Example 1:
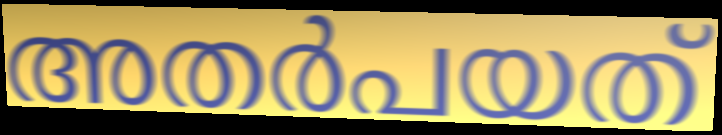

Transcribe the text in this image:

അതർപയത്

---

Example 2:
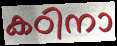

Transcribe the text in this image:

കഠിനാ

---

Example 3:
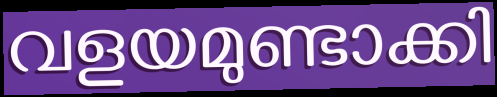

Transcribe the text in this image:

വളയമുണ്ടാക്കി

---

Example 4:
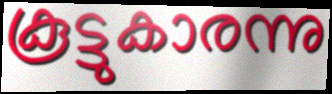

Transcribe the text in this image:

കൂട്ടുകാരന്നു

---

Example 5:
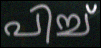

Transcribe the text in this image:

പിച്ച്